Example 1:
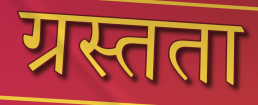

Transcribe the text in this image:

ग्रस्तता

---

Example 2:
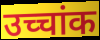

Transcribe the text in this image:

उच्चांक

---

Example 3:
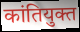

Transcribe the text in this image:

कांतियुक्त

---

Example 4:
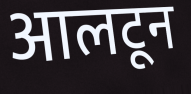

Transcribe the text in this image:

आलटून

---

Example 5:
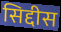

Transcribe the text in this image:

सिद्दीस